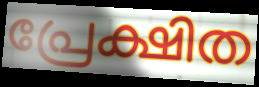
പ്രേക്ഷിത